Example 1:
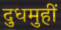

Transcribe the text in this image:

दुधमुहीं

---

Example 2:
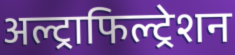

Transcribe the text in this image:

अल्ट्राफिल्ट्रेशन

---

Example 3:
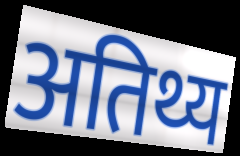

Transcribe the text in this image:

अतिथ्य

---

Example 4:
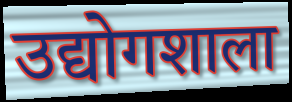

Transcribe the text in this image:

उद्योगशाला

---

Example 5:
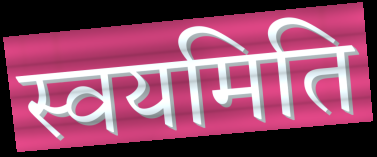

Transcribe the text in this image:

स्वयमिति